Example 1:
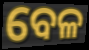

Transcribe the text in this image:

ବେଳ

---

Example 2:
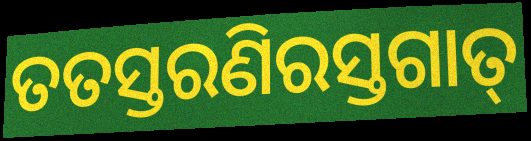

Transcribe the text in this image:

ତତସ୍ତରଣିରସ୍ତଗାତ୍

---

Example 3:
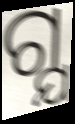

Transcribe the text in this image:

ଗ୍ଯ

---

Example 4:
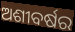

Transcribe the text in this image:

ଅଶୀବର୍ଷର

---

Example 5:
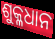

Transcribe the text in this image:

ଶୁକ୍ଳଧାନ